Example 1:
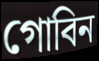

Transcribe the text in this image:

গোবিন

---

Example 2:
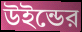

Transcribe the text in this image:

উইন্ডের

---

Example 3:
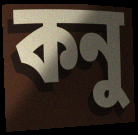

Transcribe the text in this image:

কনু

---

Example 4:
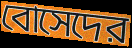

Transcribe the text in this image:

বোসেদের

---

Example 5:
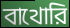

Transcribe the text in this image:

বাথোরি